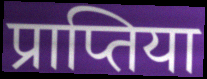
प्राप्तिया